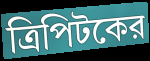
ত্রিপিটকের